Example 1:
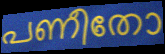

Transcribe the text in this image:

പണീതോ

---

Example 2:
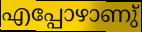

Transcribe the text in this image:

എപ്പോഴാണു്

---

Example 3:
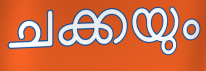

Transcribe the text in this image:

ചക്കയും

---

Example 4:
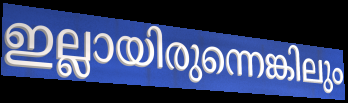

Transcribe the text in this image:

ഇല്ലായിരുന്നെങ്കിലും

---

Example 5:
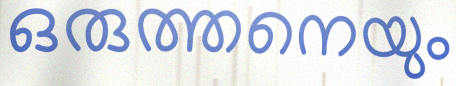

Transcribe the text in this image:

ഒരുത്തനെയും